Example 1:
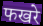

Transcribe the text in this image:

फखरे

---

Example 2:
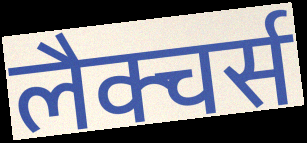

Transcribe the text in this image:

लैक्चर्स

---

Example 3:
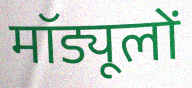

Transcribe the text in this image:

मॉड्यूलों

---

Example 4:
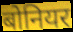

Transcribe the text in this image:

बोनियर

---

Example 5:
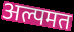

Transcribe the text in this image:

अल्पमत